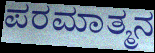
ಪರಮಾತ್ಮನ